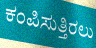
ಕಂಪಿಸುತ್ತಿರಲು